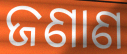
ଜଣାଣ